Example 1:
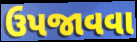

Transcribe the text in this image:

ઉપજાવવા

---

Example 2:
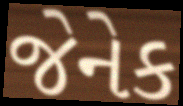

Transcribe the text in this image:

જેનેક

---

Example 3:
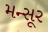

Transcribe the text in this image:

મન્સૂર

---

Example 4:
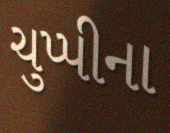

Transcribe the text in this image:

ચુપ્પીના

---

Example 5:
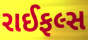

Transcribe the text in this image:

રાઈફલ્સ